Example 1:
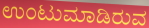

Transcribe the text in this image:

ಉಂಟುಮಾಡಿರುವ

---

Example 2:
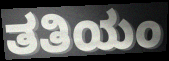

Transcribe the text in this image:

ತತಿಯಂ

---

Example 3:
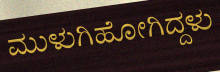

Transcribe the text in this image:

ಮುಳುಗಿಹೋಗಿದ್ದಳು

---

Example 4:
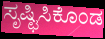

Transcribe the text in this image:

ಸೃಷ್ಟಿಸಿಕೊಂಡ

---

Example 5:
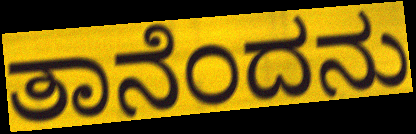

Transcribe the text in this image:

ತಾನೆಂದನು